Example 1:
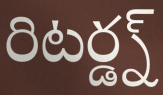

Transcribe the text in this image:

రిటర్డ్న్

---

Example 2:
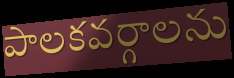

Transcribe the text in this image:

పాలకవర్గాలను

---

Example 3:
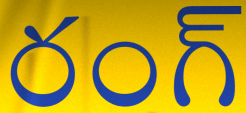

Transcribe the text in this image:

రంగ్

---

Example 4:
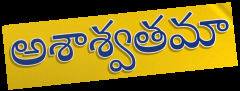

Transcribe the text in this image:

అశాశ్వతమా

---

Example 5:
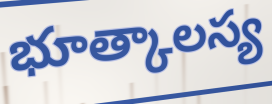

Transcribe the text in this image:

భూత్కాలస్య